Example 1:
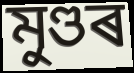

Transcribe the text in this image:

মুণ্ডৰ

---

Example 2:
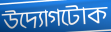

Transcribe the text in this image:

উদ্যোগটোক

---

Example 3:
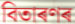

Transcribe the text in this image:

বিতাৰণৰ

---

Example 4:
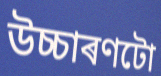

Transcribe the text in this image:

উচ্চাৰণটো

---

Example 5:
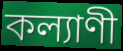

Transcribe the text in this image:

কল্যাণী